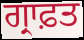
ਗ੍ਰਾਫ਼ਤ